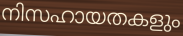
നിസഹായതകളും